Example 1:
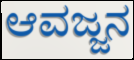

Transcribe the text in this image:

ಆವಜ್ಜನ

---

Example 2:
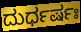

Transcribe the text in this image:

ದುರ್ಧರ್ಷಃ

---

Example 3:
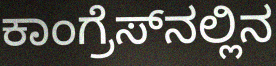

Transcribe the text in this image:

ಕಾಂಗ್ರೆಸ್‌ನಲ್ಲಿನ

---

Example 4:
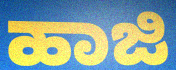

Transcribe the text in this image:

ಹಾಜಿ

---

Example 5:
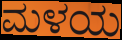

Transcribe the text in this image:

ಮಳಯ